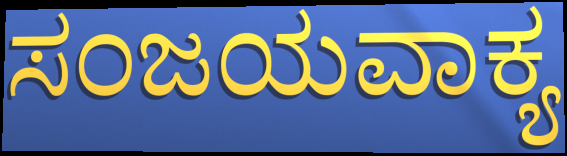
ಸಂಜಯವಾಕ್ಯ